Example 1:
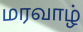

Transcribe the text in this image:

மரவாழ்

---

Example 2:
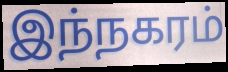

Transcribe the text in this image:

இந்நகரம்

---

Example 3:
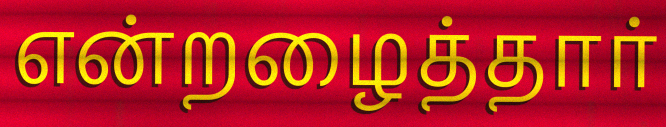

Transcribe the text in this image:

என்றழைத்தார்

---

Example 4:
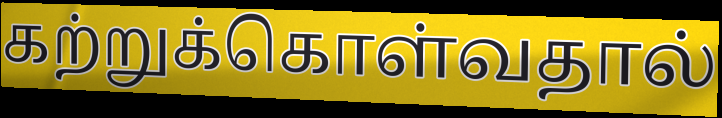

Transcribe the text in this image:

கற்றுக்கொள்வதால்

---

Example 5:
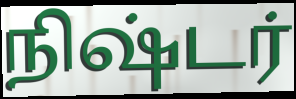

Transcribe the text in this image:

நிஷ்டர்